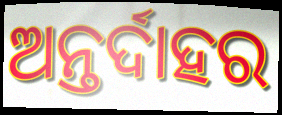
ଅନ୍ତର୍ଦାହର